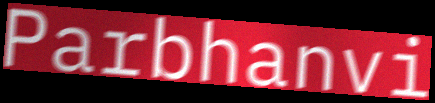
Parbhanvi